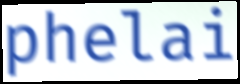
phelai